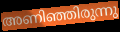
അണിഞ്ഞിരുന്നു